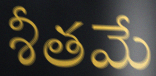
శీతమే